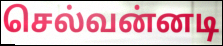
செல்வன்னடி